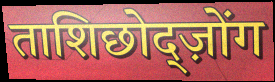
ताशिछोद्ज़ोंग